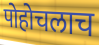
पोहोचलाच